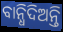
ବାନ୍ଧିଦିଅନ୍ତି